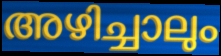
അഴിച്ചാലും